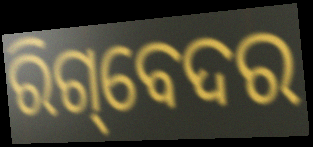
ରିଗ୍‌ବେଦର